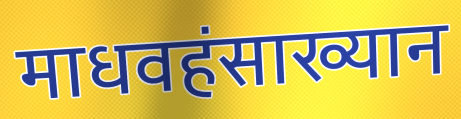
माधवहंसाख्यान